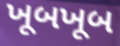
ખૂબખૂબ